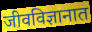
जीवविज्ञानात